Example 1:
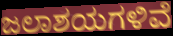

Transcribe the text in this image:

ಜಲಾಶಯಗಳಿವೆ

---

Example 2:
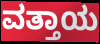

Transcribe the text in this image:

ವತ್ತಾಯ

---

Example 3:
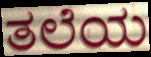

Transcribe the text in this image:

ತಲೆಯ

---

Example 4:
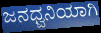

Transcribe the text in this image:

ಜನಧ್ವನಿಯಾಗಿ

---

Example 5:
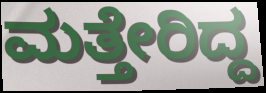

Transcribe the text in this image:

ಮತ್ತೇರಿದ್ದ